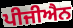
ਪੀਜੀਐਨ